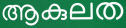
ആകുലത